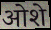
ओशे